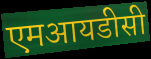
एमआयडीसी